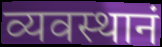
व्यवस्थानं